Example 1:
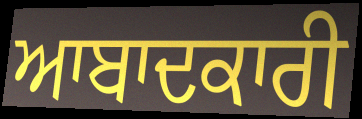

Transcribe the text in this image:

ਆਬਾਦਕਾਰੀ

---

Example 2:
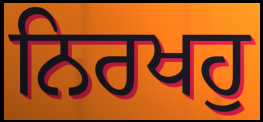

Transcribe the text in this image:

ਨਿਰਖਹੁ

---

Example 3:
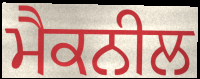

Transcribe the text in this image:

ਮੈਕਨੀਲ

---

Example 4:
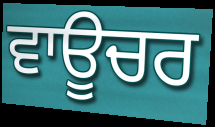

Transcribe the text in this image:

ਵਾਊਚਰ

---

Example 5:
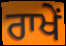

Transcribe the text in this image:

ਰਾਖੇਂ